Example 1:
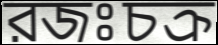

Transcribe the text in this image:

রজঃচক্র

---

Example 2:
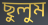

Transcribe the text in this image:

ছুলুম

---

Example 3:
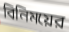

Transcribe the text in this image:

বিনিময়ের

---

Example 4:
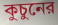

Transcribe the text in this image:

কুচুনের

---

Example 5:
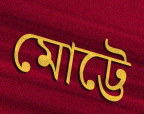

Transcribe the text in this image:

মোট্টে